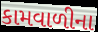
કામવાળીના